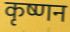
कृष्णन